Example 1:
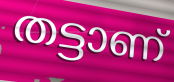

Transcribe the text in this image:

തട്ടാണ്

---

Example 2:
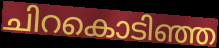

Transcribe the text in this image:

ചിറകൊടിഞ്ഞ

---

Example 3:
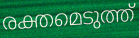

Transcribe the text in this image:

രക്തമെടുത്ത്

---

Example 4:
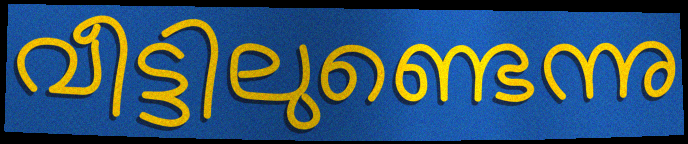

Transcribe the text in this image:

വീട്ടിലുണ്ടെന്നു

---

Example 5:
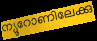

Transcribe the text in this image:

ന്യൂറോണിലേക്കു